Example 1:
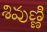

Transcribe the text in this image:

శివుణ్ణి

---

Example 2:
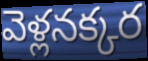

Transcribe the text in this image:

వెళ్లనక్కర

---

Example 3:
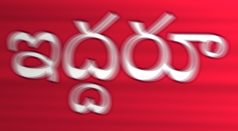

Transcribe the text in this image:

ఇద్దరూ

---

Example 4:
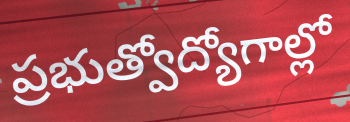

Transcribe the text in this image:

ప్రభుత్వోద్యోగాల్లో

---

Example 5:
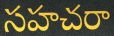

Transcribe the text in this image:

సహచరా